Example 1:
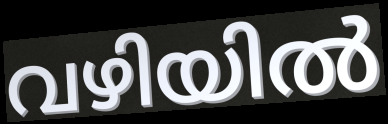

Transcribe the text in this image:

വഴിയിൽ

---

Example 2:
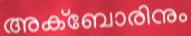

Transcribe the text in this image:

അക്ബോരിനും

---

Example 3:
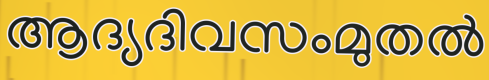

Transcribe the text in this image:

ആദ്യദിവസംമുതൽ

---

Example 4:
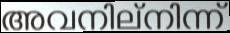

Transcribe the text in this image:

അവനില്നിന്ന്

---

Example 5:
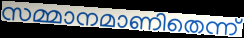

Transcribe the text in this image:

സമ്മാനമാണിതെന്ന്